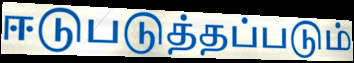
ஈடுபடுத்தப்படும்